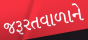
જરૂરતવાળાને